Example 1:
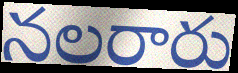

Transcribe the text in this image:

నలరారు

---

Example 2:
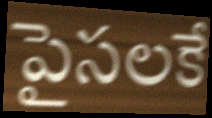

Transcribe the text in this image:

పైసలకే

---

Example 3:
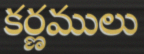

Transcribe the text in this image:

కర్ణములు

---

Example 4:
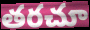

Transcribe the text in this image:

తరచూ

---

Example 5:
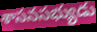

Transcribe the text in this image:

శాసనసభ్యుడు